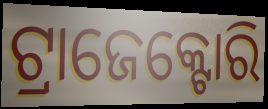
ଟ୍ରାଜେକ୍ଟୋରି